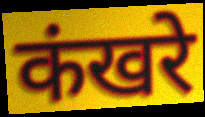
कंखरे